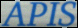
APIS